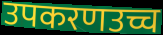
उपकरणउच्च